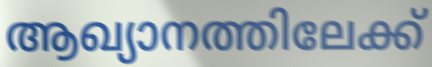
ആഖ്യാനത്തിലേക്ക്